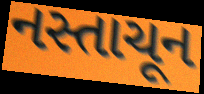
નસ્તાચૂન